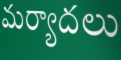
మర్యాదలు